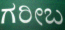
ಗರೀಬ